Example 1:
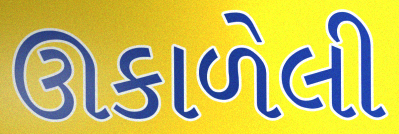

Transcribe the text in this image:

ઊકાળેલી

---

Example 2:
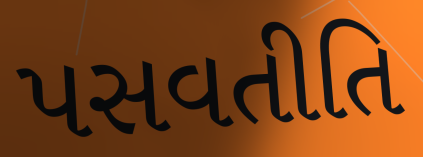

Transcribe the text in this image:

પસવતીતિ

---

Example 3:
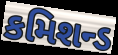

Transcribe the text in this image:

કમિશન્ડ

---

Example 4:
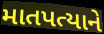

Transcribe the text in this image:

માતપત્યાને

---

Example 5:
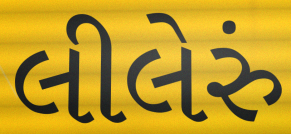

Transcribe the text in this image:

લીલેરું